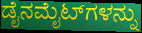
ಡೈನಮೈಟ್‌ಗಳನ್ನು